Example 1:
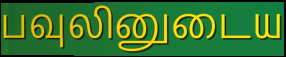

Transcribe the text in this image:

பவுலினுடைய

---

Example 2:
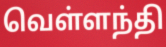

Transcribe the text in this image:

வெள்ளந்தி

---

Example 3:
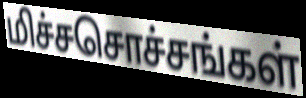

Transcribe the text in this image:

மிச்சசொச்சங்கள்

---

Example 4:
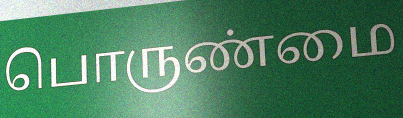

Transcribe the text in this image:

பொருண்மை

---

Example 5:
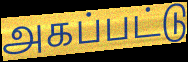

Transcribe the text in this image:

அகப்பட்டு